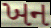
ખન